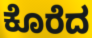
ಕೊರೆದ